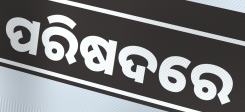
ପରିଷଦରେ